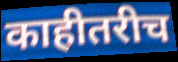
काहीतरीच